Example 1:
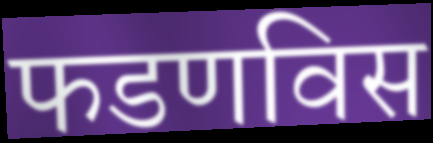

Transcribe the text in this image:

फडणविस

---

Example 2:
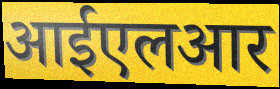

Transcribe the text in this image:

आईएलआर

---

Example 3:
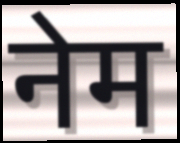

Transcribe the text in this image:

नेम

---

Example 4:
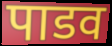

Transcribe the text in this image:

पाडव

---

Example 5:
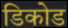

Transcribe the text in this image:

डिकोड